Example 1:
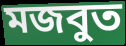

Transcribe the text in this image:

মজবুত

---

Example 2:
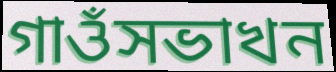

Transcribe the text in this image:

গাওঁসভাখন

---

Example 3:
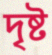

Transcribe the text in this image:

দৃষ্ট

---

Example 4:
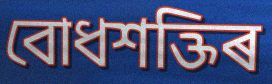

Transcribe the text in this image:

বোধশক্তিৰ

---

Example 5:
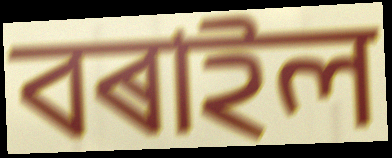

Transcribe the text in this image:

বৰাইল